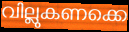
വില്ലുകണക്കെ